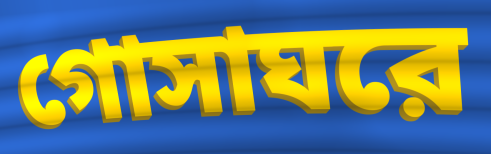
গোসাঘরে